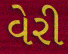
વેરી